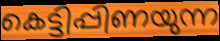
കെട്ടിപ്പിണയുന്ന